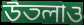
উতলাও